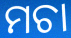
ମଚା